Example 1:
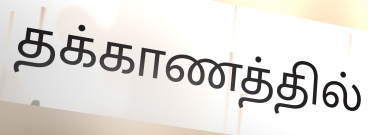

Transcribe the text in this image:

தக்காணத்தில்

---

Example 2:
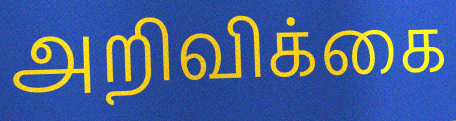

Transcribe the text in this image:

அறிவிக்கை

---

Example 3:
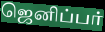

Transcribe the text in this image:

ஜெனிப்பர்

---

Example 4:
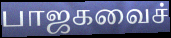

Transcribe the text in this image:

பாஜகவைச்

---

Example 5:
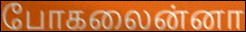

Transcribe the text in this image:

போகலைன்னா